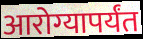
आरोग्यापर्यंत